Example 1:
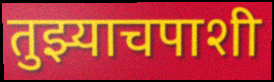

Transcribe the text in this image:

तुझ्याचपाशी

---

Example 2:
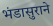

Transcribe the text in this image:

भंडासुराने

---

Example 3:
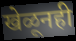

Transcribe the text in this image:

खेळूनही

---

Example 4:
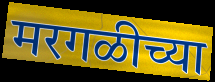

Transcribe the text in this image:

मरगळीच्या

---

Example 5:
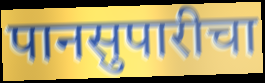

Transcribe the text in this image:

पानसुपारीचा